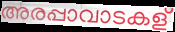
അരപ്പാവാടകള്